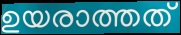
ഉയരാത്തത്